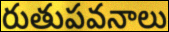
రుతుపవనాలు